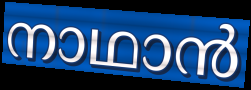
നാഥാൻ